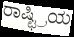
ರಾಷ್ಟ್ರಿಯ